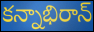
కన్నాభిరాన్